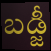
బడ్జీ